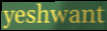
yeshwant